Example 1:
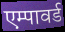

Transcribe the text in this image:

एम्पावर्ड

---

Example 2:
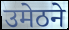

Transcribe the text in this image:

उमेठने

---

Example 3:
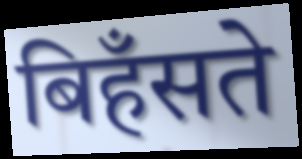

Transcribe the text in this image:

बिहँसते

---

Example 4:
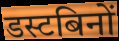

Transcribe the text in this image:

डस्टबिनों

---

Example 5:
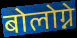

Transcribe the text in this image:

बोलोग्ने